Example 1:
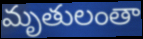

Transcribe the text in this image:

మృతులంతా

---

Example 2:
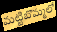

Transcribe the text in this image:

మట్టిబొమ్మలో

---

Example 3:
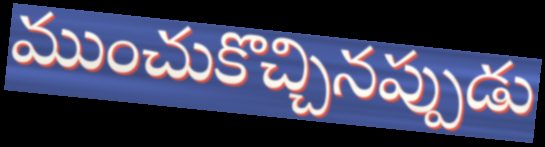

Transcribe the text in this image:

ముంచుకొచ్చినప్పుడు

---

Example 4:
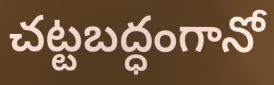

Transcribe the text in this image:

చట్టబద్ధంగానో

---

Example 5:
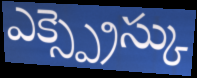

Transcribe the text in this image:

ఎక్స్ప్రెస్కు